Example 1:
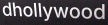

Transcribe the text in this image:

dhollywood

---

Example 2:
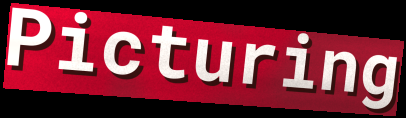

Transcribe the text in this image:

Picturing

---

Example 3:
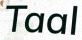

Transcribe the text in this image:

Taal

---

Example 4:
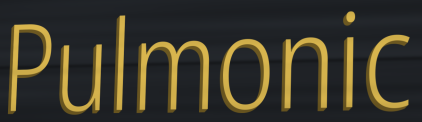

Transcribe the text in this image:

Pulmonic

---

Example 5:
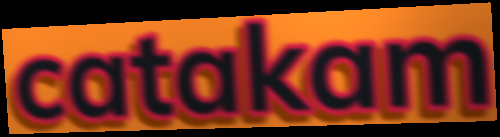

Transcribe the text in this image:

catakam